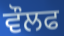
ਵੌਲਫ